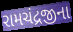
રામચંદ્રજીના